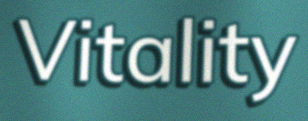
Vitality